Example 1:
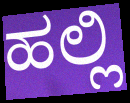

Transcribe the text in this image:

ಹಲ್ಲಿ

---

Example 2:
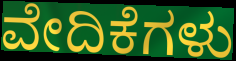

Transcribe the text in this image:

ವೇದಿಕೆಗಳು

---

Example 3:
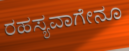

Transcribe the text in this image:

ರಹಸ್ಯವಾಗೇನೂ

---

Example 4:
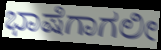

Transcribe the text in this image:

ಭಾಷೆಗಾಗಲೀ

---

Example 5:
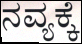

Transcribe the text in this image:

ನವ್ಯಕ್ಕೆ